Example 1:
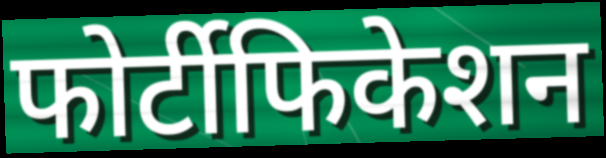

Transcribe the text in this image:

फोर्टीफिकेशन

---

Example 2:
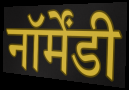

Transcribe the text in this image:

नॉर्मेंडी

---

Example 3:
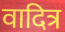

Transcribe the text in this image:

वादित्र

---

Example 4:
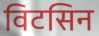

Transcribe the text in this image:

विटसिन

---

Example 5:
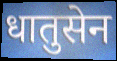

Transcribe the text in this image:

धातुसेन